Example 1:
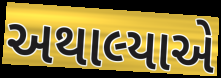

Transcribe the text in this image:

અથાલ્યાએ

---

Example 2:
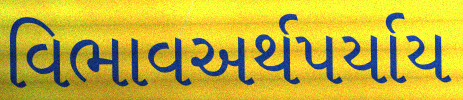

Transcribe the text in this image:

વિભાવઅર્થપર્યાય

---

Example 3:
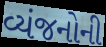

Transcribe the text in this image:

વ્યંજનોની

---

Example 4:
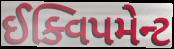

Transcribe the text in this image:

ઈક્વિપમેન્ટ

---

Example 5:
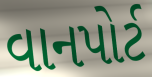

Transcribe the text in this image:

વાનપોર્ટ